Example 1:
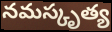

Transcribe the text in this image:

నమస్కృత్య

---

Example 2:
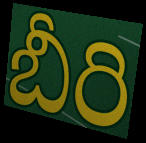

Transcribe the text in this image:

బీరి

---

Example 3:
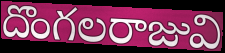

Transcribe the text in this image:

దొంగలరాజువి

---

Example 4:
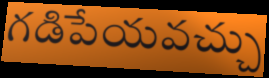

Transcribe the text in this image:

గడిపేయవచ్చు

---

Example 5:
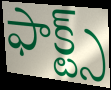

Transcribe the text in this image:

ఫాక్ట్స్